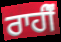
ਰਾਹੀਂੰ